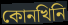
কোনখিনি